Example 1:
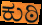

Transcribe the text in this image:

ಕುಠಿ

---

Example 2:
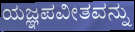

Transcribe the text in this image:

ಯಜ್ಞಪವೀತವನ್ನು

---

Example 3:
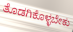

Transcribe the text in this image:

ತೊಡಗಿಕೊಳ್ಳಬೇಕು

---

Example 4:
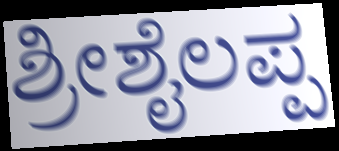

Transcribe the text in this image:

ಶ್ರೀಶೈಲಪ್ಪ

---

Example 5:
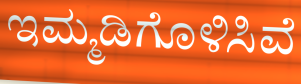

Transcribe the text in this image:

ಇಮ್ಮಡಿಗೊಳಿಸಿವೆ